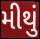
મીથું